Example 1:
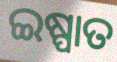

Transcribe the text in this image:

ଇଷ୍ପାତ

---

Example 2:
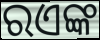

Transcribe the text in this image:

ରଏଙ୍କ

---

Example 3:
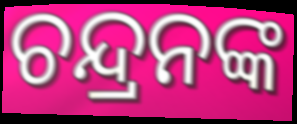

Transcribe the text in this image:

ଚନ୍ଦ୍ରନଙ୍କ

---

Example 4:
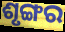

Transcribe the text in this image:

ଶୃଙ୍ଗର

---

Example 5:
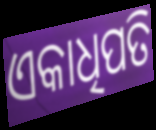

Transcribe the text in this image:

ଏକାଧିପତି